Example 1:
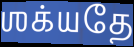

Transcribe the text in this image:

ஶக்யதே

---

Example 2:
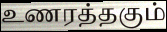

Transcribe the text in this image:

உணரத்தகும்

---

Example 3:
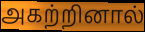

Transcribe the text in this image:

அகற்றினால்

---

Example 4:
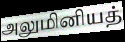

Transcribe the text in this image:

அலுமினியத்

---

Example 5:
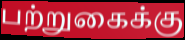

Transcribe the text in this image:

பற்றுகைக்கு